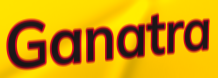
Ganatra